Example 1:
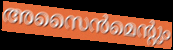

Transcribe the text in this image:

അസൈൻമെന്റും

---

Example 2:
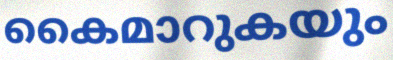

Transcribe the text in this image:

കൈമാറുകയും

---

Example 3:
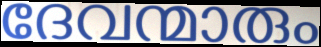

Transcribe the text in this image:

ദേവന്മാരും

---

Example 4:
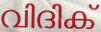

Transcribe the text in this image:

വിദിക്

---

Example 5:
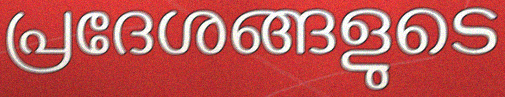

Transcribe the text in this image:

പ്രദേശങ്ങളുടെ